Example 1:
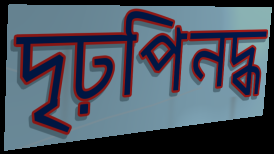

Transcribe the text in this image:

দৃঢ়পিনদ্ধ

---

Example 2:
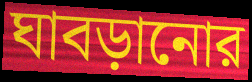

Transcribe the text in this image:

ঘাবড়ানোর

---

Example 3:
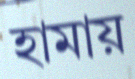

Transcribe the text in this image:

হামায়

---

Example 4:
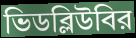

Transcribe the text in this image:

ভিডব্লিউবির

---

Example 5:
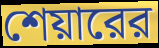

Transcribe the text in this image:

শেয়ারের